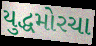
યુદ્ધમોરચા